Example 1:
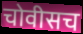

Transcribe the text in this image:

चोवीसच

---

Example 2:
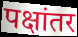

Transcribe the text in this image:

पक्षांतर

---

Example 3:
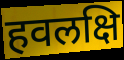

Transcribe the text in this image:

हवलक्षि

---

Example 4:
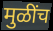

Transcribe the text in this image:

मुळींच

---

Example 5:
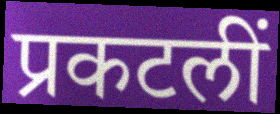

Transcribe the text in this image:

प्रकटलीं